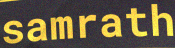
samrath